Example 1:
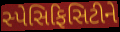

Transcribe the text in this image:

સ્પેસિફિસિટીને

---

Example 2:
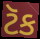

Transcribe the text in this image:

ટૅક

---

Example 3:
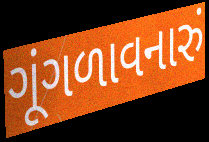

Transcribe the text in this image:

ગૂંગળાવનારું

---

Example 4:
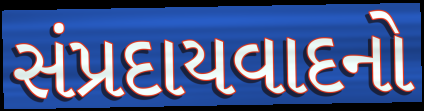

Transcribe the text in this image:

સંપ્રદાયવાદનો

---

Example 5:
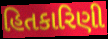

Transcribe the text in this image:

હિતકારિણી